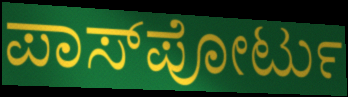
ಪಾಸ್‌ಪೋರ್ಟು